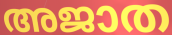
അജാത